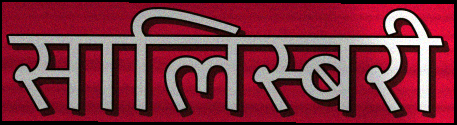
सालिस्बरी